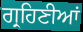
ਗ੍ਰਹਿਣੀਆਂ